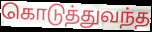
கொடுத்துவந்த